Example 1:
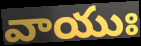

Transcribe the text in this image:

వాయుః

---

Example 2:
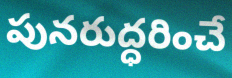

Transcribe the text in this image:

పునరుద్ధరించే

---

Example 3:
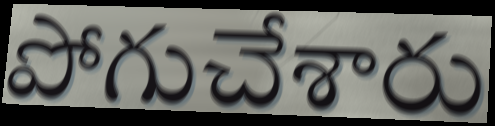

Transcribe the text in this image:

పోగుచేశారు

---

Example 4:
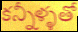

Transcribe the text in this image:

కన్నీళ్ళతో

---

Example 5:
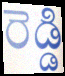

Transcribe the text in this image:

రెడ్డి